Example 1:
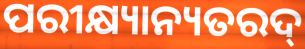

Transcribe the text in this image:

ପରୀକ୍ଷ୍ୟାନ୍ୟତରଦ୍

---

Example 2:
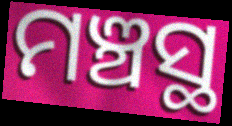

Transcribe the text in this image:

ମଞ୍ଚସ୍ଥ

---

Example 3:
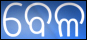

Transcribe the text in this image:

ବେଳ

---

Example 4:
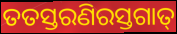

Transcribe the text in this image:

ତତସ୍ତରଣିରସ୍ତଗାତ୍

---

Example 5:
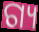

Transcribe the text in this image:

ଗ୍ଯ